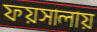
ফয়সালায়